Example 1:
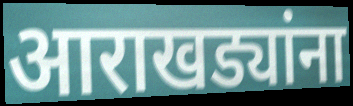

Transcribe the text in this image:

आराखड्यांना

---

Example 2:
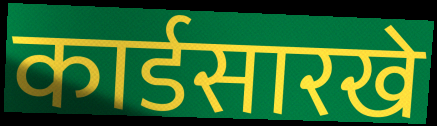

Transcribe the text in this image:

कार्डसारखे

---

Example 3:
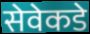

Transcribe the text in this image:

सेवेकडे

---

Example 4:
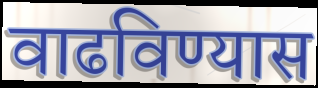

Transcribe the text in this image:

वाढविण्यास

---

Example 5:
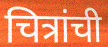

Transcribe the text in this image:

चित्रांची